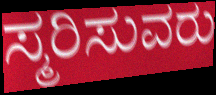
ಸ್ಮರಿಸುವರು